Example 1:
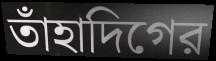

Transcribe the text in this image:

তাঁহাদিগের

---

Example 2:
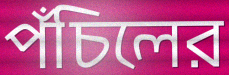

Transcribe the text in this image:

পঁচিলের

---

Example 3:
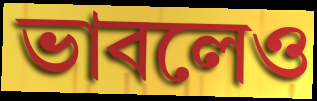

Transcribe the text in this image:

ভাবলেও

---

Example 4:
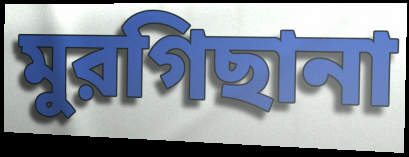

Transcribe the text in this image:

মুরগিছানা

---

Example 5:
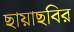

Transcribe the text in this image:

ছায়াছবির